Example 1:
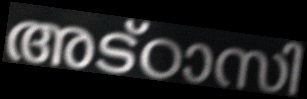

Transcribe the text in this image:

അട്ഠാസി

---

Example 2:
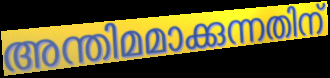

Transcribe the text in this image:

അന്തിമമാക്കുന്നതിന്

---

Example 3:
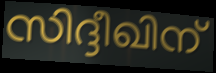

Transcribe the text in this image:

സിദ്ദീഖിന്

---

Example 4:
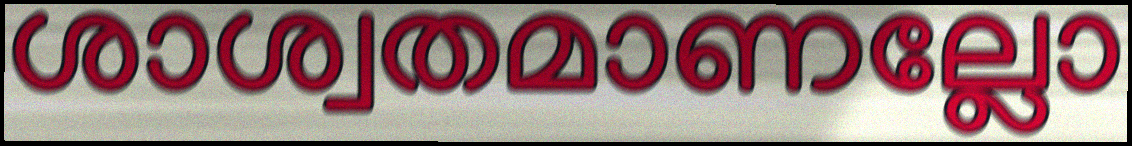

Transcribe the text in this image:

ശാശ്വതമാണല്ലോ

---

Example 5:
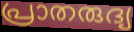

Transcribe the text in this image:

പ്രാതരുദ്യ